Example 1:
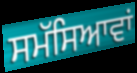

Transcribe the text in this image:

ਸਮੱਸਿਆਵਾਂ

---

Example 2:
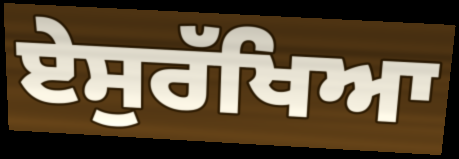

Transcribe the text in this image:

ਏਸੁਰੱਖਿਆ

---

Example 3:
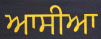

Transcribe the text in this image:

ਆਸੀਆ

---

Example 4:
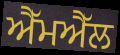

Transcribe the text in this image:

ਐੱਮਐੱਲ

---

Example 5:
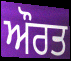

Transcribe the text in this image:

ਔਰਤ